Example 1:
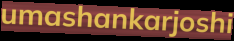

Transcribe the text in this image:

umashankarjoshi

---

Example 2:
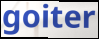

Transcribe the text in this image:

goiter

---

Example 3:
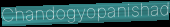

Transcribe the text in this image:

Chandogyopanishad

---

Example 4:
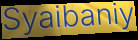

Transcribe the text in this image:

Syaibaniy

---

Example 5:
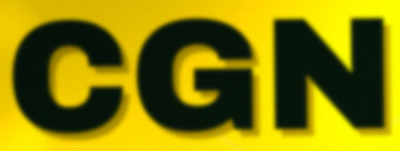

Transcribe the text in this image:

CGN